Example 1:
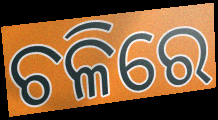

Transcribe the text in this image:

ଚଳିରେ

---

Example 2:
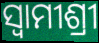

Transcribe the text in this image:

ସ୍ଵାମୀଶ୍ରୀ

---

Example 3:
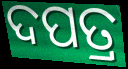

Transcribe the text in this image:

ଦପତ୍ର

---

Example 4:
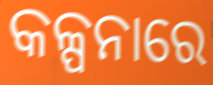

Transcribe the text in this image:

କଳ୍ପନାରେ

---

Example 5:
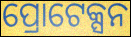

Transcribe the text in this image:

ପ୍ରୋଟେକ୍ସନ